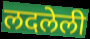
लदलेली